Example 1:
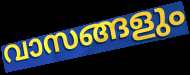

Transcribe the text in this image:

വാസങ്ങളും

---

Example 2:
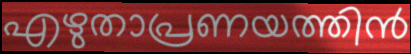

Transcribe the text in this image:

എഴുതാപ്രണയത്തിൻ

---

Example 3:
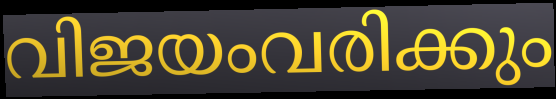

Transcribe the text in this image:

വിജയംവരിക്കും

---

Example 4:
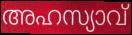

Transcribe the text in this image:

അഹസ്യാവ്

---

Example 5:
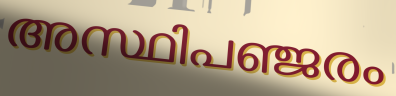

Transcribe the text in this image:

അസ്ഥിപഞ്ജരം